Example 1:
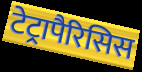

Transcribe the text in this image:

टेट्रापैरिसिस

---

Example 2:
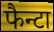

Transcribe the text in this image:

फैन्टा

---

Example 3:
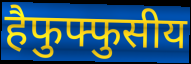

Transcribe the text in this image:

हैफुफ्फुसीय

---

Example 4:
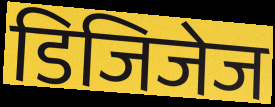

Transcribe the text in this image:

डिजिजेज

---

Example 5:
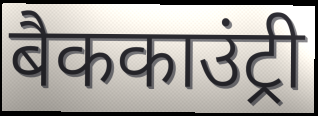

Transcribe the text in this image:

बैककाउंट्री